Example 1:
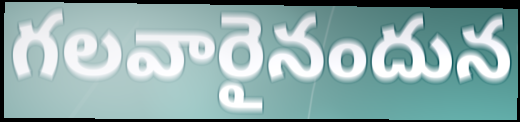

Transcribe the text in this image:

గలవారైనందున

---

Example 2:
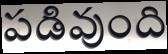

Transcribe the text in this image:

పడివుంది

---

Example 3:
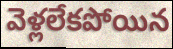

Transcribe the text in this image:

వెళ్లలేకపోయిన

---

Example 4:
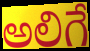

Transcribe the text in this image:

అలిగే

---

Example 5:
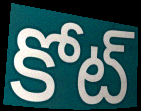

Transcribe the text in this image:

కోట్